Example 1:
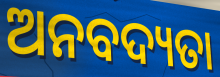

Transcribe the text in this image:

ଅନବଦ୍ୟତା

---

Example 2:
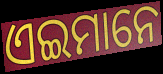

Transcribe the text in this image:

ଏଇମାନେ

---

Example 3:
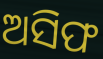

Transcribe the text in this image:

ଅସିଫ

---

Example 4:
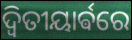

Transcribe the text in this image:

ଦ୍ଵିତୀୟାର୍ଵରେ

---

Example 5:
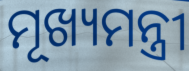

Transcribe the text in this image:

ମୂଖ୍ୟମନ୍ତ୍ରୀ